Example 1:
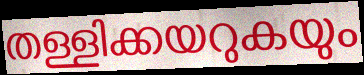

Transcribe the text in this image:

തള്ളിക്കയറുകയും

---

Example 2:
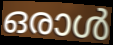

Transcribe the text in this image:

ഒരാൾ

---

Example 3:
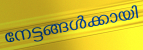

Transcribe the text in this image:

നേട്ടങ്ങൾക്കായി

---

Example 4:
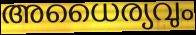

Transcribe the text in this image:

അധൈര്യവും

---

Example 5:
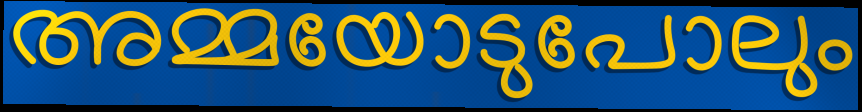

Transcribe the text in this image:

അമ്മയോടുപോലും